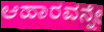
ಆಹಾರವನ್ನೇ